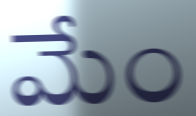
మేం